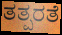
ತತ್ಪರತೆ